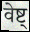
वेष्ट्